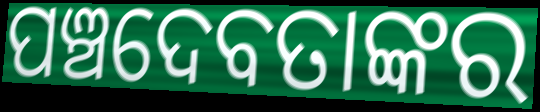
ପଞ୍ଚଦେବତାଙ୍କର